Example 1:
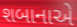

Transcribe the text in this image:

શબાનાએ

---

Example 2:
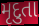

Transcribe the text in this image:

મૃદુતા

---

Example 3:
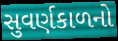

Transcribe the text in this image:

સુવર્ણકાળનો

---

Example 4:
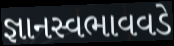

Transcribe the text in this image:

જ્ઞાનસ્વભાવવડે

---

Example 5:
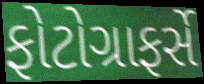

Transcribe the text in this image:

ફોટોગ્રાફર્સે